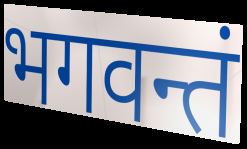
भगवन्तं